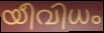
യീവിധം